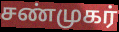
சண்முகர்